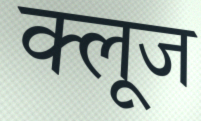
क्लूज